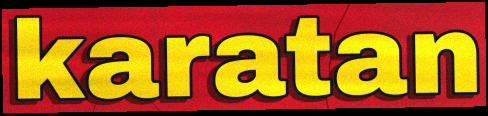
karatan